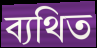
ব্যথিত